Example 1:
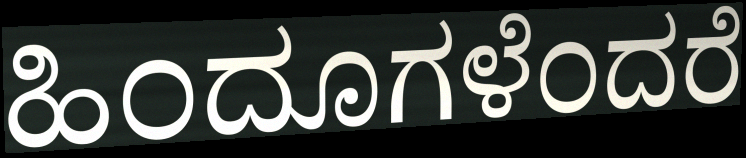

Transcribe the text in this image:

ಹಿಂದೂಗಳೆಂದರೆ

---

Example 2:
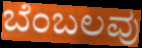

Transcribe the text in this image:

ಬೆಂಬಲವು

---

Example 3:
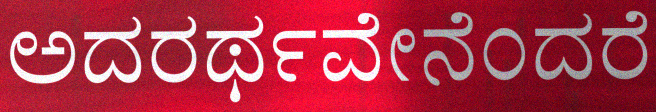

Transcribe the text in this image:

ಅದರರ್ಥವೇನೆಂದರೆ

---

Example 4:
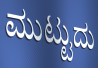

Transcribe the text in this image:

ಮುಟ್ಟುದು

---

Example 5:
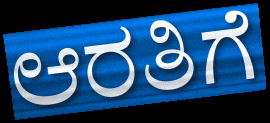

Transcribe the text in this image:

ಆರತಿಗೆ